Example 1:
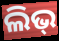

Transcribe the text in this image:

ଲିଭ୍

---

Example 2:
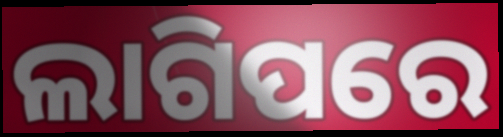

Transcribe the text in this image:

ଲାଗିପରେ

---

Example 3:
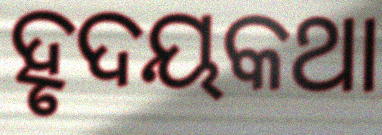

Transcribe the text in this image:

ହୃଦୟକଥା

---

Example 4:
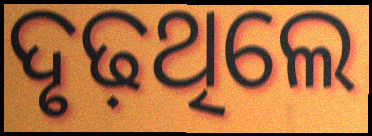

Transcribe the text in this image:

ଦୃଢ଼ଥିଲେ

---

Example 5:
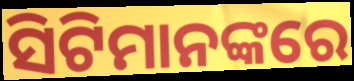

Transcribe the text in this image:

ସିଟିମାନଙ୍କରେ